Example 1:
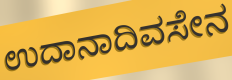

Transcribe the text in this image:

ಉದಾನಾದಿವಸೇನ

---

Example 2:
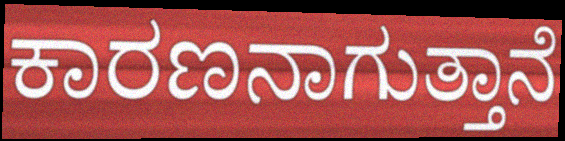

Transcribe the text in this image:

ಕಾರಣನಾಗುತ್ತಾನೆ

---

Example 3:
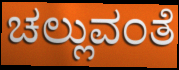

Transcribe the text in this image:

ಚಲ್ಲುವಂತೆ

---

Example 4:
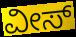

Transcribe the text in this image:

ವೀಸ್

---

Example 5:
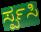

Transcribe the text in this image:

ರ್ಸ್ಪಸಿ